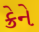
ક્રેને